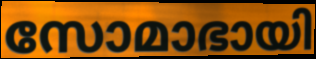
സോമാഭായി